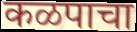
कळपाचा